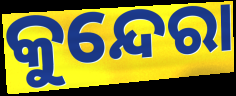
କୁନ୍ଦେରା